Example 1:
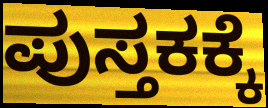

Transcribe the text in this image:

ಪುಸ್ತಕಕ್ಕೆ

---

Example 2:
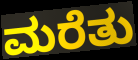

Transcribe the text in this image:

ಮರೆತು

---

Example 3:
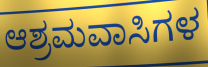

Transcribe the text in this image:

ಆಶ್ರಮವಾಸಿಗಳ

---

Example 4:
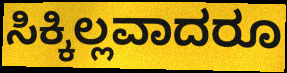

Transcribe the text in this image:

ಸಿಕ್ಕಿಲ್ಲವಾದರೂ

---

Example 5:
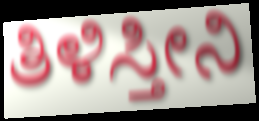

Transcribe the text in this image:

ತಿಳಿಸ್ತೀನಿ